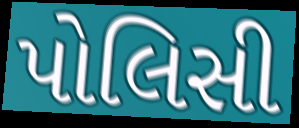
પોલિસી